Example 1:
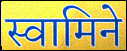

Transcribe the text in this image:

स्वामिने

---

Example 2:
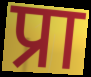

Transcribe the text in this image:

प्रा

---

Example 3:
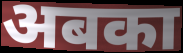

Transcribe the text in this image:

अबका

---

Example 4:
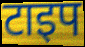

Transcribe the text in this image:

टाइप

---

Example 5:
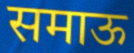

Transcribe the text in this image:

समाऊ